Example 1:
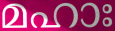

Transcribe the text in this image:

മഹാഃ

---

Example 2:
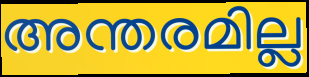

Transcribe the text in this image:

അന്തരമില്ല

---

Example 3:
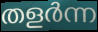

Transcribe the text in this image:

തളർന്ന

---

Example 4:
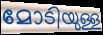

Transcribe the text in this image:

മോടിയുള്ള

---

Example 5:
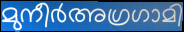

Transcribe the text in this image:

മുനീർഅഗ്രഗാമി